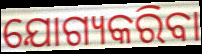
ଯୋଗ୍ୟକରିବା